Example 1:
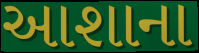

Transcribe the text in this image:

આશાના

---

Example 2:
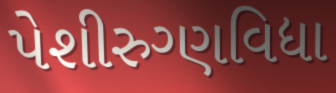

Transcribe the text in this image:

પેશીરુગ્ણવિદ્યા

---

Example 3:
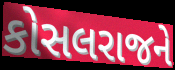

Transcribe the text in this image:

કોસલરાજને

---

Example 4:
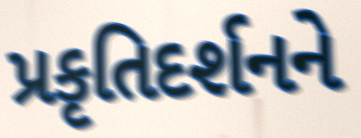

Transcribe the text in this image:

પ્રકૃતિદર્શનને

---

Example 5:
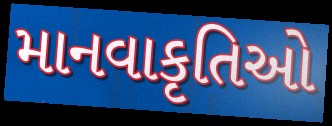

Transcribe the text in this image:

માનવાકૃતિઓ